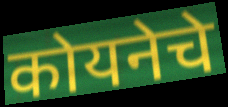
कोयनेचे